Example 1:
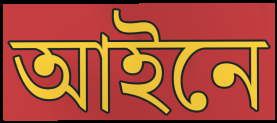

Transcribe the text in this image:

আইনে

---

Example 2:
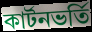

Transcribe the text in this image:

কার্টনভর্তি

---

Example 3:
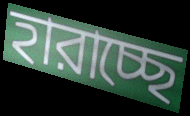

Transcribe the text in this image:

হারাচ্ছে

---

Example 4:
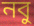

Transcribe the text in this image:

নবু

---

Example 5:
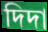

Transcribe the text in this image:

দিদা